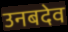
उनबदेव